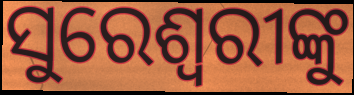
ସୁରେଶ୍ୱରୀଙ୍କୁ